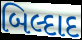
બિલ્દાદ